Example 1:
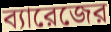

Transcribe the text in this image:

ব্যারেজের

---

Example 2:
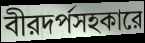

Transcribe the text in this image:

বীরদর্পসহকারে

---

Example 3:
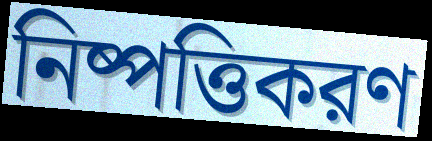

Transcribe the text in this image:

নিষ্পত্তিকরণ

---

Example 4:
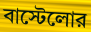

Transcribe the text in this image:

বাস্টেলোর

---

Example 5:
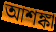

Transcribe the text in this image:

আশঙ্কা